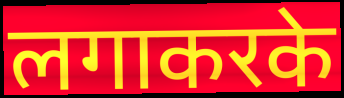
लगाकरके